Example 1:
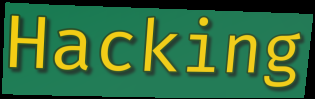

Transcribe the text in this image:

Hacking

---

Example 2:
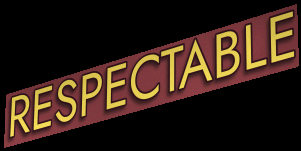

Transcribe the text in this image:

RESPECTABLE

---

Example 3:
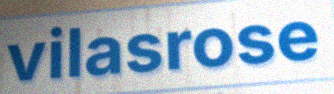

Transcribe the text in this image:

vilasrose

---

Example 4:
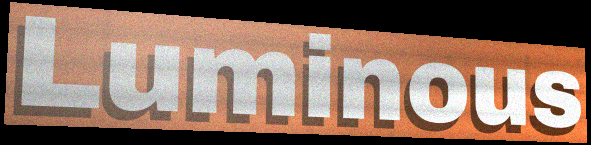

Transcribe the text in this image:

Luminous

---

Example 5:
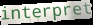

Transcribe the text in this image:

interpret